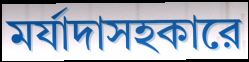
মর্যাদাসহকারে